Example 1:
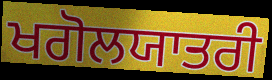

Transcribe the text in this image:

ਖਗੋਲਯਾਤਰੀ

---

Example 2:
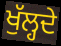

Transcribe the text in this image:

ਖੁੱਲ੍ਹਦੇ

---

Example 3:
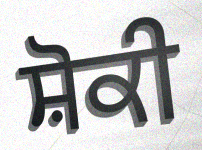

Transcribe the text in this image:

ਸ਼ੋਕੀ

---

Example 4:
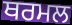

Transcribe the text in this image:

ਥਰਮਲ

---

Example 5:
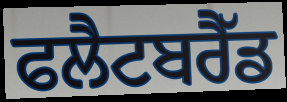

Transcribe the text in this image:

ਫਲੈਟਬਰੈੱਡ